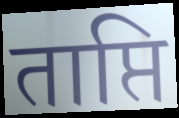
ताप्ति